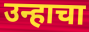
उन्हाचा